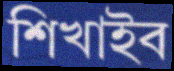
শিখাইব